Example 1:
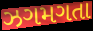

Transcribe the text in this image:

ઝગમગતા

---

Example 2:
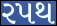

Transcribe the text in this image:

રપથ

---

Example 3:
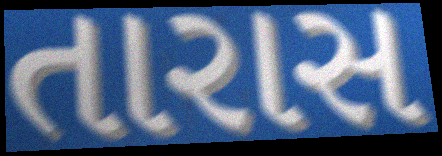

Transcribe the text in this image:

તારાસ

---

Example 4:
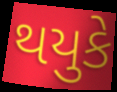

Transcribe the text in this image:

થયુકે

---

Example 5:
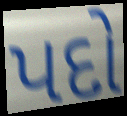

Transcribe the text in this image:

પદો